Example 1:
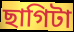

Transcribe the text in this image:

ছাগিটা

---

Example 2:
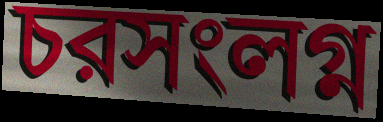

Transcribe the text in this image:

চরসংলগ্ন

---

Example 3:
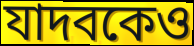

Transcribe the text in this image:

যাদবকেও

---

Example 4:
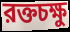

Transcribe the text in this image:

রক্তচক্ষু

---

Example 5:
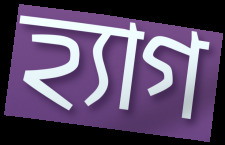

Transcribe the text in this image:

হ্যাগ